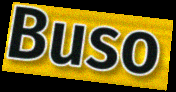
Buso